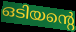
ഒടിയന്റെ